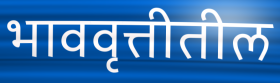
भाववृत्तीतील